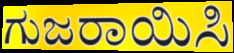
ಗುಜರಾಯಿಸಿ